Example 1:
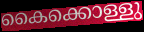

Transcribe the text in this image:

കൈക്കൊള്ളു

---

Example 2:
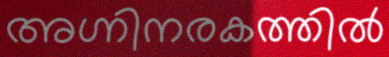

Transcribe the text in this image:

അഗ്നിനരകത്തിൽ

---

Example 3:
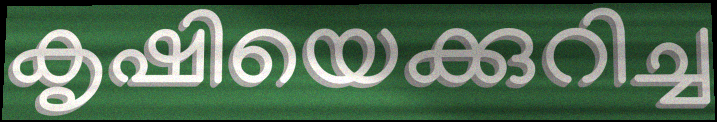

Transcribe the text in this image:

കൃഷിയെക്കുറിച്ച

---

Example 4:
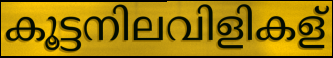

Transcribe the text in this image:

കൂട്ടനിലവിളികള്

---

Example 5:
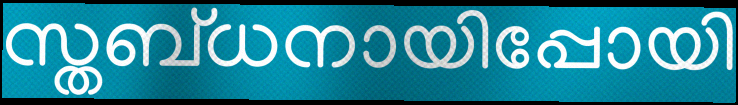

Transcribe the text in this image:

സ്തബ്ധനായിപ്പോയി